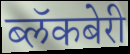
ब्लॅकबेरी